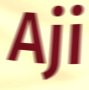
Aji